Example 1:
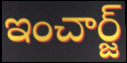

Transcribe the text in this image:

ఇంచార్జ్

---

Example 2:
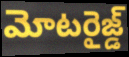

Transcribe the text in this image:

మోటరైజ్డ్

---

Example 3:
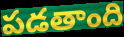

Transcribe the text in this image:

పడతాంది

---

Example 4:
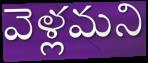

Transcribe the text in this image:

వెళ్లమని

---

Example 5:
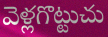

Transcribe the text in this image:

వెళ్లగొట్టుచు